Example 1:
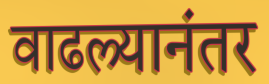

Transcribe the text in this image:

वाढल्यानंतर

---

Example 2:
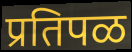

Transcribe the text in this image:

प्रतिपळ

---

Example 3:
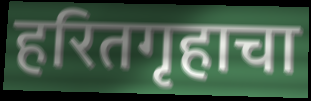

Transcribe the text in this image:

हरितगृहाचा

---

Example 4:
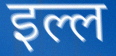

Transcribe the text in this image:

इल्ल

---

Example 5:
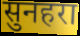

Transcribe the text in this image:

सुनहरा